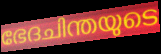
ഭേദചിന്തയുടെ